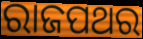
ରାଜପଥର